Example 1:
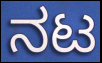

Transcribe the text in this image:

ನಟ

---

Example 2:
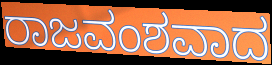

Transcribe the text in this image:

ರಾಜವಂಶವಾದ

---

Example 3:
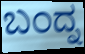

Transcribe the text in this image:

ಬಂದ್ನ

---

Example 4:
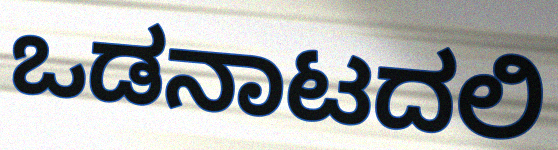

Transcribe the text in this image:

ಒಡನಾಟದಲಿ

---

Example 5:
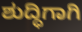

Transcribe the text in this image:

ಶುದ್ಧಿಗಾಗಿ